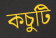
কচুটি